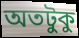
অতটুকু